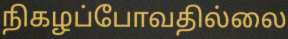
நிகழப்போவதில்லை